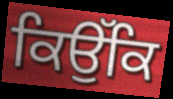
ਕਿਉੱਕਿ